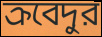
ক্রবেদুর